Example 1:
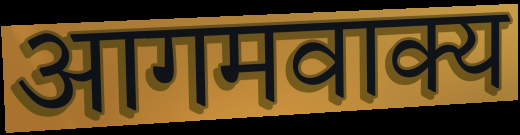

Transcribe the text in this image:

आगमवाक्य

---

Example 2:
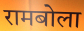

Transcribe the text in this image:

रामबोला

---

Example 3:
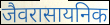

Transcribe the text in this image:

जैवरासायनिक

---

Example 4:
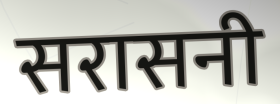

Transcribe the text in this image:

सरासनी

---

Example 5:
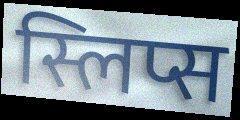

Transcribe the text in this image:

स्लिप्स